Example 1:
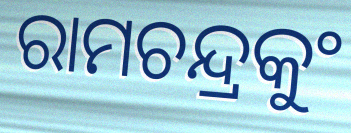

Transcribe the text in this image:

ରାମଚନ୍ଦ୍ରକୁଂ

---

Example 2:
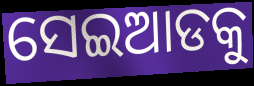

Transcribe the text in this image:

ସେଇଆଡକୁ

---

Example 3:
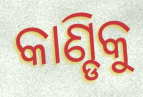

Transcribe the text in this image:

କାଣ୍ଡିକୁ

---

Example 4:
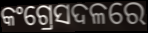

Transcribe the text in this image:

କଂଗ୍ରେସଦଳରେ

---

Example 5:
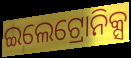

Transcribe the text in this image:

ଇଲେଟ୍ରୋନିକ୍ସ